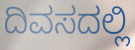
ದಿವಸದಲ್ಲಿ